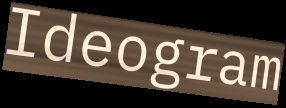
Ideogram